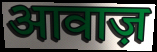
आवाज़